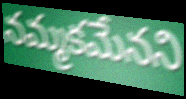
నమ్మకమేనని